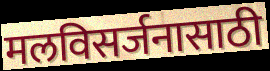
मलविसर्जनासाठी